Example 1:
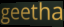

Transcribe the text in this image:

geetha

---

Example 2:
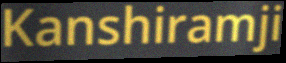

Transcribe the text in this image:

Kanshiramji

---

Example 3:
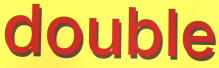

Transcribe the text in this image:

double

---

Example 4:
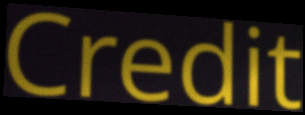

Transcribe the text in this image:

Credit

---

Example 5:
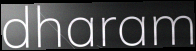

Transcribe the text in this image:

dharam